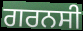
ਗਰਨਸੀ